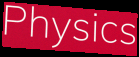
Physics